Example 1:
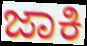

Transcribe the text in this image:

ಜಾಕಿ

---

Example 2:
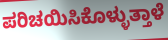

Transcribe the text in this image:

ಪರಿಚಯಿಸಿಕೊಳ್ಳುತ್ತಾಳೆ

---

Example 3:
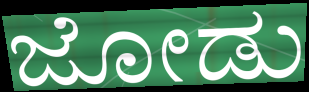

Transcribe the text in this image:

ಜೋಡು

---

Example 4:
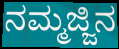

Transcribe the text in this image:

ನಮ್ಮಜ್ಜಿನ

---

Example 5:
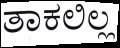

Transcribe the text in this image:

ತಾಕಲಿಲ್ಲ